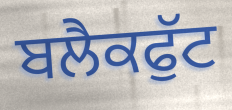
ਬਲੈਕਫੁੱਟ